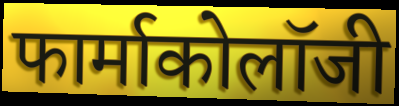
फार्माकोलॉजी